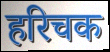
हरिचक